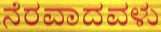
ನೆರವಾದವಳು